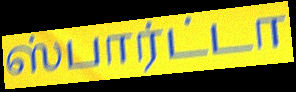
ஸ்பார்ட்டா